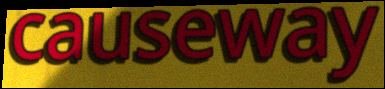
causeway